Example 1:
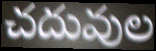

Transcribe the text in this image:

చదువుల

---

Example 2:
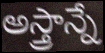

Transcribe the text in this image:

అస్త్రాన్నే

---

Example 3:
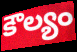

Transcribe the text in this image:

కౌల్యం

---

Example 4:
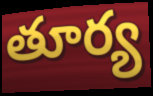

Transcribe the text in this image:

తూర్య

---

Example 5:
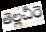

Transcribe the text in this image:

తెల్లచీరె